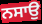
ਨਸਾਉ